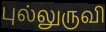
புல்லுருவி